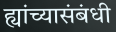
ह्यांच्यासंबंधी